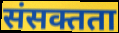
संसक्तता